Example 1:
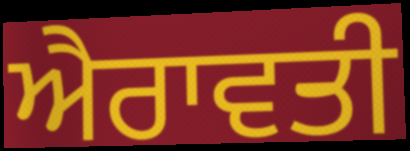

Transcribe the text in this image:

ਐਰਾਵਤੀ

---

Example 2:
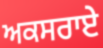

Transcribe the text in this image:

ਅਕਸਰਾਏ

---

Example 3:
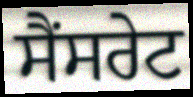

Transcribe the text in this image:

ਸੈਂਸਰੇਟ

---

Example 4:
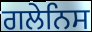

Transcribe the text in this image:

ਗਲੇਨਿਸ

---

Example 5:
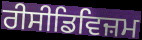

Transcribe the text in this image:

ਰੀਸੀਡਿਵਿਜ਼ਮ